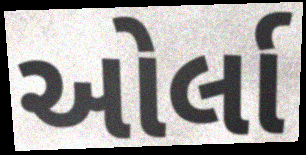
ઓર્લા